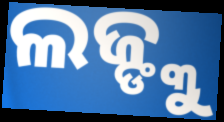
ଲଜ୍ଙ୍କୁ